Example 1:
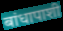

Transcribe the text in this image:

बांधापाशी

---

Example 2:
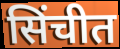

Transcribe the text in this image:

सिंचीत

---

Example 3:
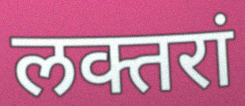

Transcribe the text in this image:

लक्तरां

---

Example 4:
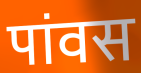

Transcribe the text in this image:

पांवस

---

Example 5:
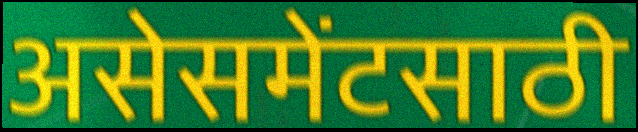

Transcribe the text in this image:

असेसमेंटसाठी